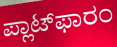
ಪ್ಲಾಟ್‌ಫಾರಂ